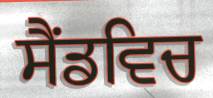
ਸੈਂਡਵਿਚ